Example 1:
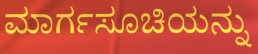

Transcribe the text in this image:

ಮಾರ್ಗಸೂಚಿಯನ್ನು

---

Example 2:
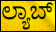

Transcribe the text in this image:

ಲ್ಯಾಬ್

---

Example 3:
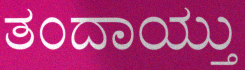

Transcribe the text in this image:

ತಂದಾಯ್ತು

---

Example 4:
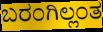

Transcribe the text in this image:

ಬರಂಗಿಲ್ಲಂತ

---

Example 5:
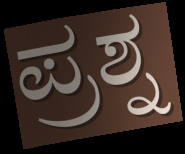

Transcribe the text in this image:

ಪ್ರಶ್ನ